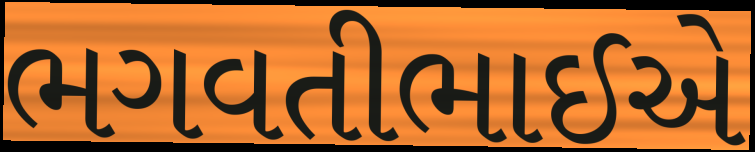
ભગવતીભાઈએ